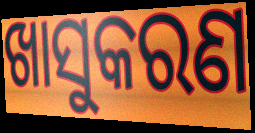
ଖାସୁକରଣ